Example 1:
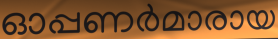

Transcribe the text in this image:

ഓപ്പണർമാരായ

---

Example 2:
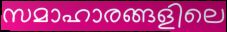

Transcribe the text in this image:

സമാഹാരങ്ങളിലെ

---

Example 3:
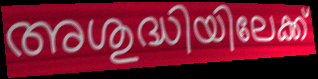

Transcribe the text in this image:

അശുദ്ധിയിലേക്ക്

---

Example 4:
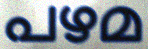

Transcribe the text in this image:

പഴമ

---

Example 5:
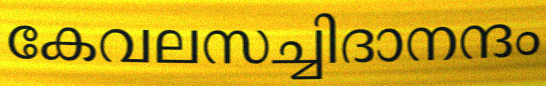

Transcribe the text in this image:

കേവലസച്ചിദാനന്ദം